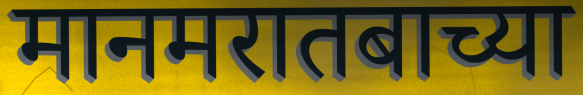
मानमरातबाच्या